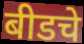
बीडचे